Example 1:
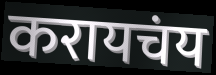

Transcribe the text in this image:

करायचंय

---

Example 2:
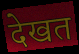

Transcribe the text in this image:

देखत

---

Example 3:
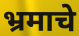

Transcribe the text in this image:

भ्रमाचे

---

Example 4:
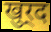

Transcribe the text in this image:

खुर्द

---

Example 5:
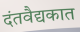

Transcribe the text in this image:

दंतवैद्यकात